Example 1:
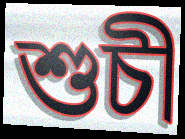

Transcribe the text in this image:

শুচী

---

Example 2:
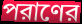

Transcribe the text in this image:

পরাণের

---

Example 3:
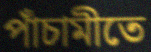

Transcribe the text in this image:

পাঁচামীতে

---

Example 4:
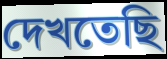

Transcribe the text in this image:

দেখতেছি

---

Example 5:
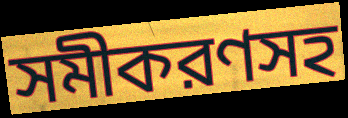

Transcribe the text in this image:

সমীকরণসহ